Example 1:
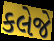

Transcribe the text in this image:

કલેજે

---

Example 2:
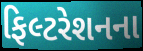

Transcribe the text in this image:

ફિલ્ટરેશનના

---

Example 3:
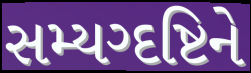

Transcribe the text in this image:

સમ્યગ્દષ્ટિને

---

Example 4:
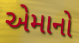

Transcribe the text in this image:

એમાનો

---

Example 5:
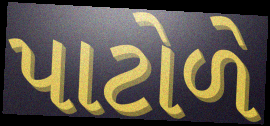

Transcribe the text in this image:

પાટોળે